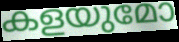
കളയുമോ